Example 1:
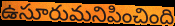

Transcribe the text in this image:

ఉసూరుమనిపించింది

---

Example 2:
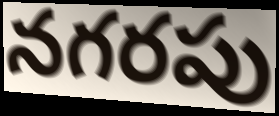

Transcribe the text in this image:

నగరపు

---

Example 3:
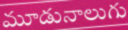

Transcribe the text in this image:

మూడునాలుగు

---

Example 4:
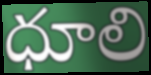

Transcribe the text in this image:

ధూలి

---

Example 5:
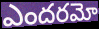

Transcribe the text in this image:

ఎందరమో